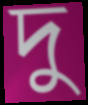
দু